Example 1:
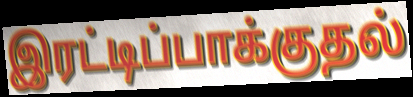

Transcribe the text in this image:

இரட்டிப்பாக்குதல்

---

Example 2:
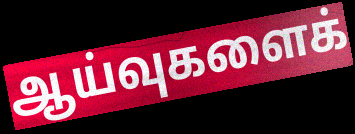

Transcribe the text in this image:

ஆய்வுகளைக்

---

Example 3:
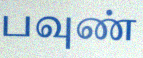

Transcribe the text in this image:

பவுண்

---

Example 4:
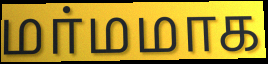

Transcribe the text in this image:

மர்மமாக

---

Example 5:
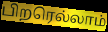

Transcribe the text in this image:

பிறரெல்லாம்